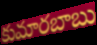
కుమారబాబు